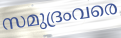
സമുദ്രംവരെ